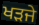
ਖੜਜੇ